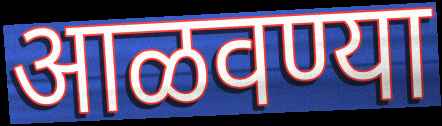
आळवण्या